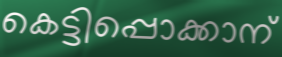
കെട്ടിപ്പൊക്കാന്